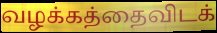
வழக்கத்தைவிடக்